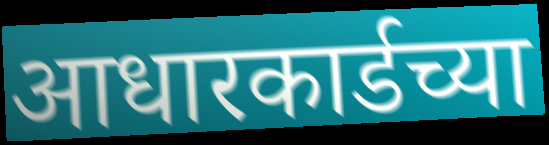
आधारकार्डच्या